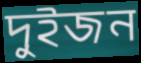
দুইজন